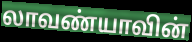
லாவண்யாவின்